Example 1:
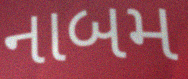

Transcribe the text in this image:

નાબમ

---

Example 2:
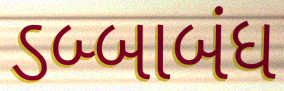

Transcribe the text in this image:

ડબ્બાબંધ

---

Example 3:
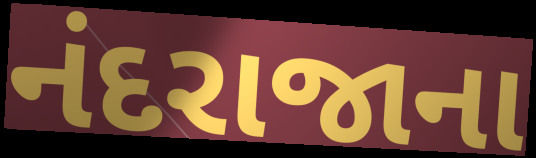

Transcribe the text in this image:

નંદરાજાના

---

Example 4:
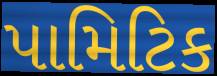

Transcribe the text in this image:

પામિટિક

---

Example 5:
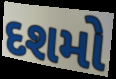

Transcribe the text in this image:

દશમો